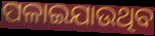
ପଳାଇଯାଉଥିବ